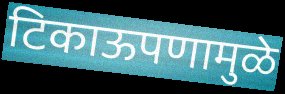
टिकाऊपणामुळे